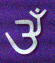
ঔঁ